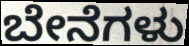
ಬೇನೆಗಳು